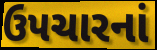
ઉપચારનાં